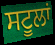
ਸਟੂਲਾਂ